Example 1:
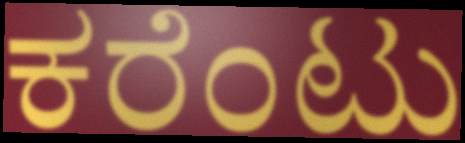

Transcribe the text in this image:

ಕರೆಂಟು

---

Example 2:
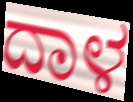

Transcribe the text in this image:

ದಾಳ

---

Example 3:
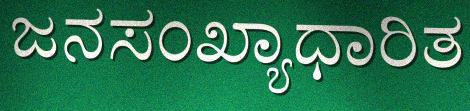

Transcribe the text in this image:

ಜನಸಂಖ್ಯಾಧಾರಿತ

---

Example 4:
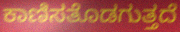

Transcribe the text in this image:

ಕಾಣಿಸತೊಡಗುತ್ತದೆ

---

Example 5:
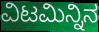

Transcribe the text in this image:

ವಿಟಮಿನ್ನಿನ